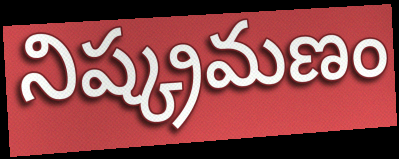
నిష్క్రమణం